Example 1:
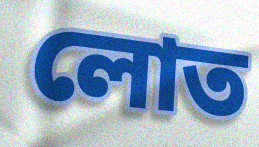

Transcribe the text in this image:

লোত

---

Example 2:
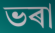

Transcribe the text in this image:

ভৰা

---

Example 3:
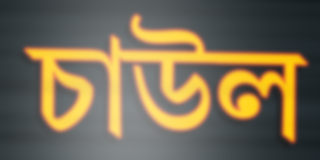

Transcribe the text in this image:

চাউল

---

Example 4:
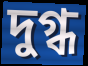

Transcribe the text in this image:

দুগ্ধ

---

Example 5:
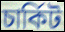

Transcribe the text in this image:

চাৰ্কিট